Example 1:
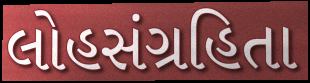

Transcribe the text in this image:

લોહસંગ્રહિતા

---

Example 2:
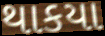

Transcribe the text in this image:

થાકયા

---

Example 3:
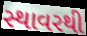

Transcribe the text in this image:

સ્થાવરથી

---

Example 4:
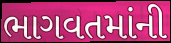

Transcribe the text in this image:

ભાગવતમાંની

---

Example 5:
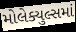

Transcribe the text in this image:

મોલેક્યુલ્સમાં